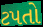
ટપતો